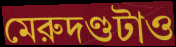
মেরুদণ্ডটাও